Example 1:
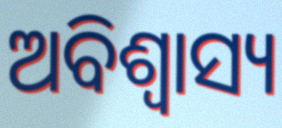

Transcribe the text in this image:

ଅବିଶ୍ୱାସ୍ୟ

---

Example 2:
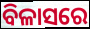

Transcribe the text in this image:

ବିଳାସରେ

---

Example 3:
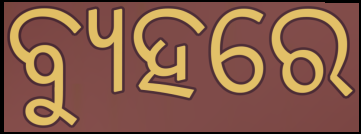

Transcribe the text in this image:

ବ୍ୟୁହରେ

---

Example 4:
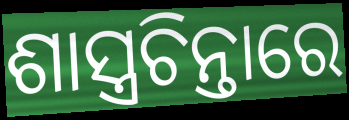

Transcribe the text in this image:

ଶାସ୍ତ୍ରଚିନ୍ତାରେ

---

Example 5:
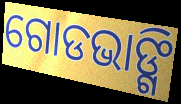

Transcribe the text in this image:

ଗୋଡଭାଙ୍ଗି